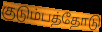
குடும்பத்தோடு